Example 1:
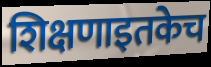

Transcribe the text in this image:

शिक्षणाइतकेच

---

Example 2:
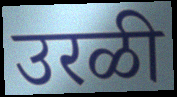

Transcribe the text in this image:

उरळी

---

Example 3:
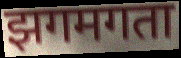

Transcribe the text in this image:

झगमगता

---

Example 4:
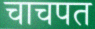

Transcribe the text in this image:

चाचपत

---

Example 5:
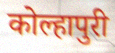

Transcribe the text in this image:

कोल्हापुरी